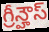
గ్రీన్హౌస్